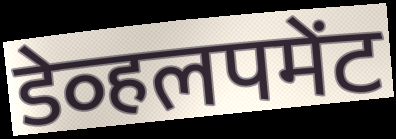
डेव्‍हलपमेंट